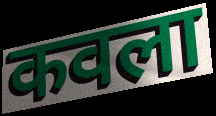
कवला